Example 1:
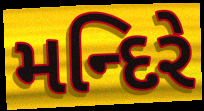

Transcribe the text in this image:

મન્દિરે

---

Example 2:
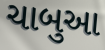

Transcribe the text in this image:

ચાબુઆ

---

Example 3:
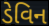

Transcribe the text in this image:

ડેવિન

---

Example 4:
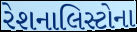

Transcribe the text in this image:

રેશનાલિસ્ટોના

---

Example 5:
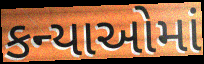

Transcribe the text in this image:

કન્યાઓમાં